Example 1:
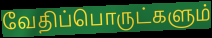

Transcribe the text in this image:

வேதிப்பொருட்களும்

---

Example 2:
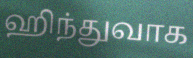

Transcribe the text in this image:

ஹிந்துவாக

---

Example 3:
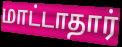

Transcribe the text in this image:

மாட்டாதார்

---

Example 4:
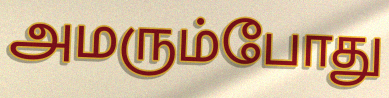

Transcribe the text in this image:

அமரும்போது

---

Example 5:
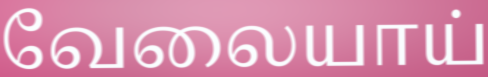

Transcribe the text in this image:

வேலையாய்